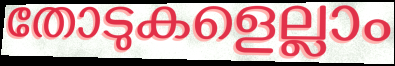
തോടുകളെല്ലാം